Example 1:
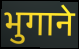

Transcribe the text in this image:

भुगाने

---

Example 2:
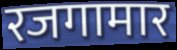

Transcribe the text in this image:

रजगामार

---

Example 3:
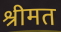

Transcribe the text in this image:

श्रीमत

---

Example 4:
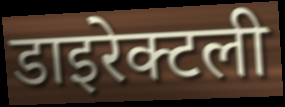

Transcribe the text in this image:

डाइरेक्टली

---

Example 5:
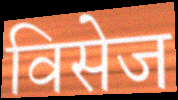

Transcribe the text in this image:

विसेज